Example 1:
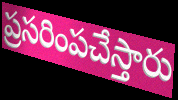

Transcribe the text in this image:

ప్రసరింపచేస్తారు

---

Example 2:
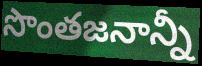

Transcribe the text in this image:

సొంతజనాన్నీ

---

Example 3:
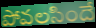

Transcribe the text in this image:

పోవలసిందే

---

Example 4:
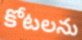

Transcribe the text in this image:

కోటలను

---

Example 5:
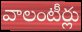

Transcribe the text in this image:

వాలంటీర్లు